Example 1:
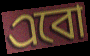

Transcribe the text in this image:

এবো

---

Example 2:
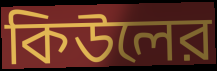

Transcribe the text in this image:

কিউলের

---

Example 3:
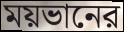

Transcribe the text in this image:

ময়ভানের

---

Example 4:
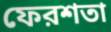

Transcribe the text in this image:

ফেরশতা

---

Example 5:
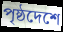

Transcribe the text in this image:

পৃষ্ঠদেশে